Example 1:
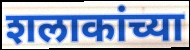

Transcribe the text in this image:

शलाकांच्या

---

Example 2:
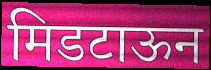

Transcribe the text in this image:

मिडटाऊन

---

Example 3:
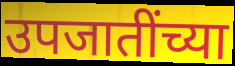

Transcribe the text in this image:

उपजातींच्या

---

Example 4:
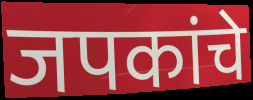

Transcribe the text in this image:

जपकांचे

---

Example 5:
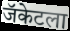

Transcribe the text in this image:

जॅकेटला